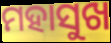
ମହାସୁଖ